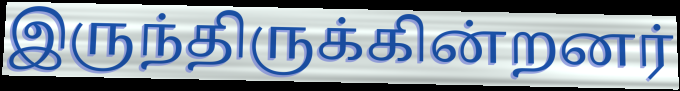
இருந்திருக்கின்றனர்